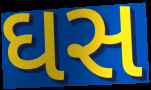
ઘસ